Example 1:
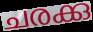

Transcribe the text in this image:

ചരക്കു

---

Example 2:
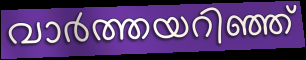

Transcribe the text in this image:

വാർത്തയറിഞ്ഞ്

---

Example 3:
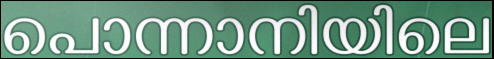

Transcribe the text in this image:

പൊന്നാനിയിലെ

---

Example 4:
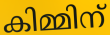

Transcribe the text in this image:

കിമ്മിന്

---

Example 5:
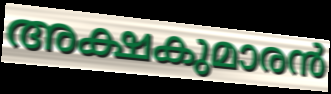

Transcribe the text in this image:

അക്ഷകുമാരൻ